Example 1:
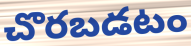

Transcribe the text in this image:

చొరబడటం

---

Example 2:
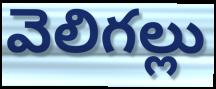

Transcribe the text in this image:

వెలిగల్లు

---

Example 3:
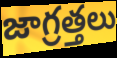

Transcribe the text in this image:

జాగ్రత్తలు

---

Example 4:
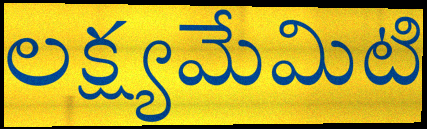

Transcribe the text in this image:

లక్ష్యమేమిటి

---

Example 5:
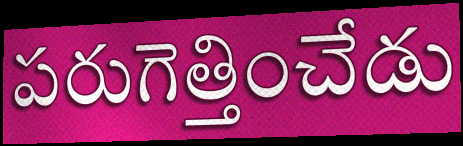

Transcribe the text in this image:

పరుగెత్తించేడు